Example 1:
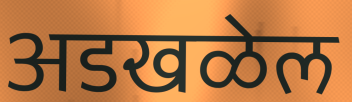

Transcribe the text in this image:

अडखळेल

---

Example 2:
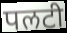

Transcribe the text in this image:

पलटी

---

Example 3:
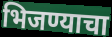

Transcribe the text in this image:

भिजण्याचा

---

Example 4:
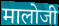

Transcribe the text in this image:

मालोजी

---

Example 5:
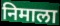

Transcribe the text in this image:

निमाला